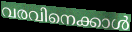
വരവിനെക്കാൾ